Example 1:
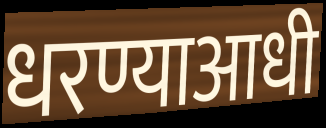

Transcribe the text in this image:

धरण्याआधी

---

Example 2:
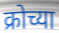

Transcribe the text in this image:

क्रोच्या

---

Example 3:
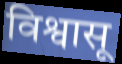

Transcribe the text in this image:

विश्वासू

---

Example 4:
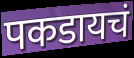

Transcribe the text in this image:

पकडायचं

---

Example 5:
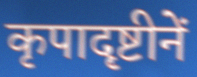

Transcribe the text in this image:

कृपादृष्टीनें